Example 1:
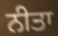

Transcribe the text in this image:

ਨੀਤਾ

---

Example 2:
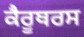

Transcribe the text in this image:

ਕੈਰੂਥਰਸ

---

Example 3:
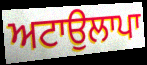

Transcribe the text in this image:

ਅਟਾਉਲਾਪਾ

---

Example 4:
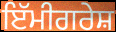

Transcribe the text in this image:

ਇੱਮੀਗਰੇਸ਼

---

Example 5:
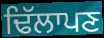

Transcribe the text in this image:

ਢਿੱਲਾਪਣ